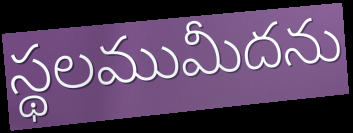
స్థలముమీదను